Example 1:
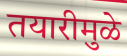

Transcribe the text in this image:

तयारीमुळे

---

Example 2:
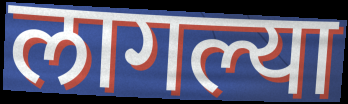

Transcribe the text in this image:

लागल्‍या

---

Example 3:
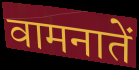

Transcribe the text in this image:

वामनातें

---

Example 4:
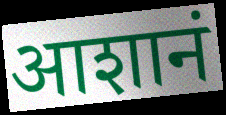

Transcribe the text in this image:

आशानं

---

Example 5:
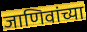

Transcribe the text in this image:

जाणिवांच्या